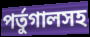
পর্তুগালসহ